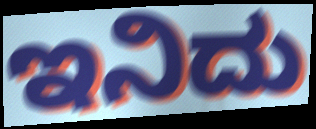
ಇನಿದು